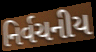
નિર્વચનીય